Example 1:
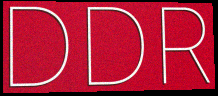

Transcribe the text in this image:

DDR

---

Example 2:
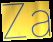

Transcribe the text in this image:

Za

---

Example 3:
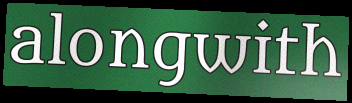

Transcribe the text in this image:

alongwith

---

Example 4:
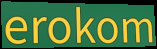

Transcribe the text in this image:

erokom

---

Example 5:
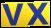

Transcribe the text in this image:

vx